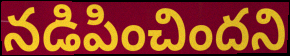
నడిపించిందని